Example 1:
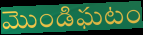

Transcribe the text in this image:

మొండిఘటం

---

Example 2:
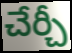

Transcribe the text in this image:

చేర్చీ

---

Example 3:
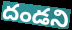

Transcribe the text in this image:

దండని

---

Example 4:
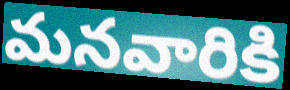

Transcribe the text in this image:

మనవారికి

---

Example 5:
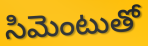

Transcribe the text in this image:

సిమెంటుతో